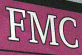
FMC